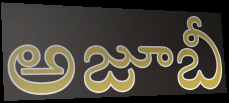
అజూబీ